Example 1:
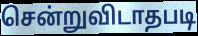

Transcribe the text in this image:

சென்றுவிடாதபடி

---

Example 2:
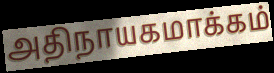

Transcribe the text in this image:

அதிநாயகமாக்கம்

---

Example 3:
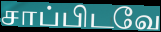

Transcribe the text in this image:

சாப்பிடவே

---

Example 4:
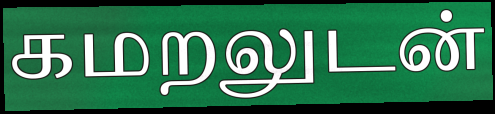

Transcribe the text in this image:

கமறலுடன்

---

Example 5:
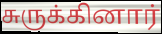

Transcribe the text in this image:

சுருக்கினார்